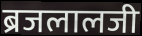
ब्रजलालजी